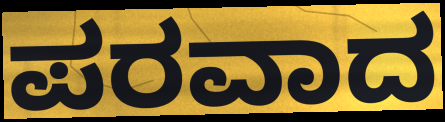
ಪರವಾದ